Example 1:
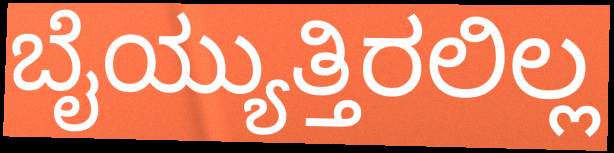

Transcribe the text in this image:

ಬೈಯ್ಯುತ್ತಿರಲಿಲ್ಲ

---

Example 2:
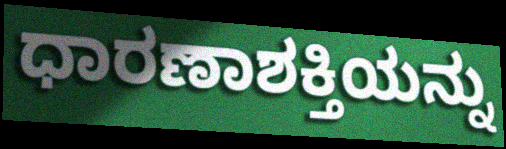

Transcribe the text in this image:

ಧಾರಣಾಶಕ್ತಿಯನ್ನು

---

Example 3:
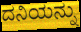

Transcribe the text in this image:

ದನಿಯನ್ನು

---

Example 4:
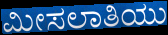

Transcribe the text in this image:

ಮೀಸಲಾತಿಯು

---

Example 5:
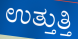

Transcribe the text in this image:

ಉತ್ತುತ್ತಿ